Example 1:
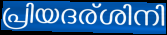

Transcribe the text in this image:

പ്രിയദര്ശിനി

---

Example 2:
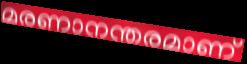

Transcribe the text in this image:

മരണാനന്തരമാണ്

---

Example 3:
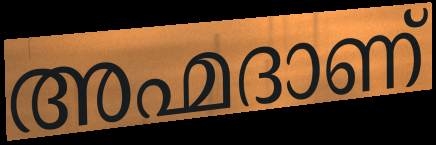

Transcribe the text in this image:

അഹ്മദാണ്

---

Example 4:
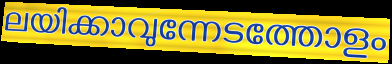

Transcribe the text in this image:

ലയിക്കാവുന്നേടത്തോളം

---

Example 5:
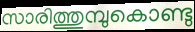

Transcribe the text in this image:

സാരിത്തുമ്പുകൊണ്ടു